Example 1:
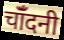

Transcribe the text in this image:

चॉँदनी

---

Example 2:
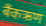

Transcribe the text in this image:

बैंकऋण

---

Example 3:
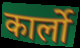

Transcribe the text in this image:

कार्लो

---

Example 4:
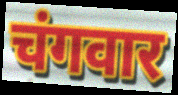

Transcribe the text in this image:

चंगवार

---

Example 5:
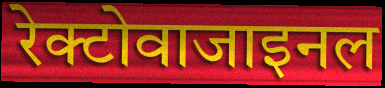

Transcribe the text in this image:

रेक्टोवाजाइनल